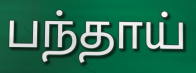
பந்தாய்